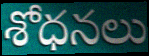
శోధనలు